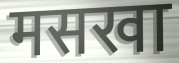
मसखा